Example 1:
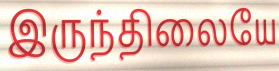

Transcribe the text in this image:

இருந்திலையே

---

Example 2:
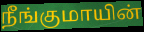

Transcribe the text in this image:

நீங்குமாயின்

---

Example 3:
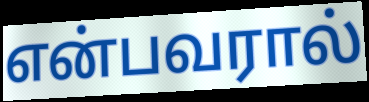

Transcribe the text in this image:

என்பவரால்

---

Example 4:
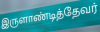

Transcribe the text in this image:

இருளாண்டித்தேவர்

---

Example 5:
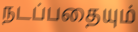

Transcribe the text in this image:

நடப்பதையும்